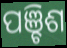
ପଞ୍ଚିଶ